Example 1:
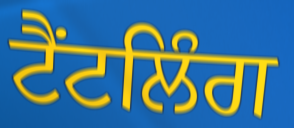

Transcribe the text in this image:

ਟੈਂਟਲਿੰਗ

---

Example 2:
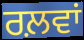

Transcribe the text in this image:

ਰਲ਼ਵਾਂ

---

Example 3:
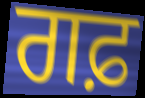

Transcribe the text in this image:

ਗਫ਼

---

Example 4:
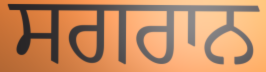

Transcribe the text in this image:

ਸਗਰਾਨ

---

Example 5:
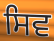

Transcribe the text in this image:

ਸਿਵ